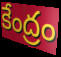
కేంద్రం